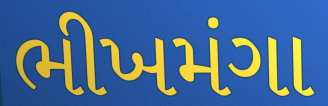
ભીખમંગા